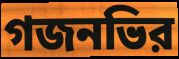
গজনভির